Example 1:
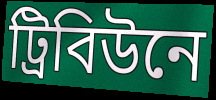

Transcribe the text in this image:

ট্রিবিউনে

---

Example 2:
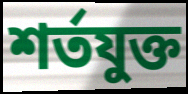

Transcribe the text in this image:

শর্তযুক্ত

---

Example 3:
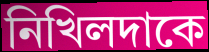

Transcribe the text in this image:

নিখিলদাকে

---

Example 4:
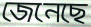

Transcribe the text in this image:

জেনেছে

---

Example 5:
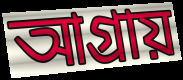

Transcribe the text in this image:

আগ্রায়